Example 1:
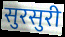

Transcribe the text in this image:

सुरसुरी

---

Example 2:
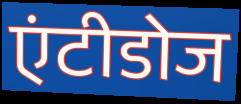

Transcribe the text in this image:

एंटीडोज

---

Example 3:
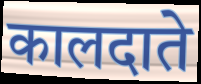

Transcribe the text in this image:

कालदाते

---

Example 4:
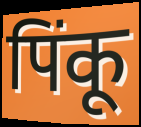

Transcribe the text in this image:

पिंकू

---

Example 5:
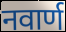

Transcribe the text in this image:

नवार्ण